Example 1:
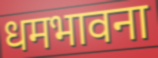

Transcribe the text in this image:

धमभावना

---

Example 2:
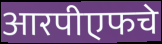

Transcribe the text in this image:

आरपीएफचे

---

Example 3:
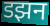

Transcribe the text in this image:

डझन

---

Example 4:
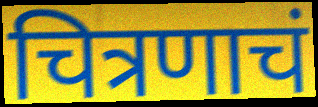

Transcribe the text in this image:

चित्रणाचं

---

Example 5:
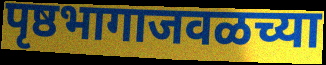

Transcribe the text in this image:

पृष्ठभागाजवळच्या